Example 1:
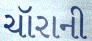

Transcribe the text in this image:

ચૉરાની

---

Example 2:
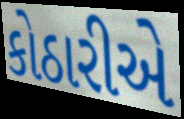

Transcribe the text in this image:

કોઠારીએ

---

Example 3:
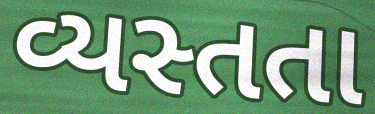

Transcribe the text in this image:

વ્યસ્તતા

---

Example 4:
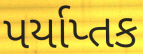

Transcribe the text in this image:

પર્યાપ્તક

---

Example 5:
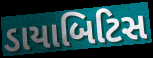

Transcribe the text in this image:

ડાયાબિટિસ